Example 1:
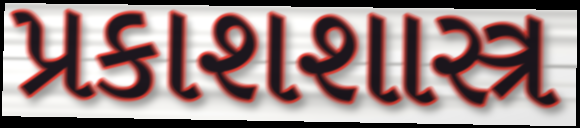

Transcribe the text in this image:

પ્રકાશશાસ્ત્ર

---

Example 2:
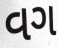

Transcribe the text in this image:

વગ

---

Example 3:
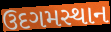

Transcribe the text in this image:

ઉદગમસ્થાન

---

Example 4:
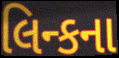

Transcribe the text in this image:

લિન્કના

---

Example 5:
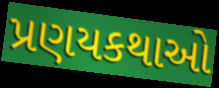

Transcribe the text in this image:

પ્રણયકથાઓ